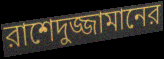
রাশেদুজ্জামানের